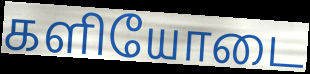
களியோடை